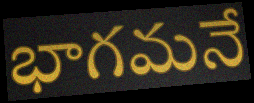
భాగమనే